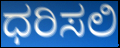
ಧರಿಸಲಿ